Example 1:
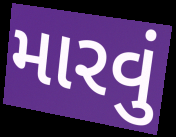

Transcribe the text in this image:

મારવું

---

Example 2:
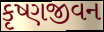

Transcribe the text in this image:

કૃષ્ણજીવન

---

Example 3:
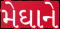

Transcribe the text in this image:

મેઘાને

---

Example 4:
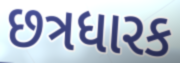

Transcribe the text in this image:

છત્રધારક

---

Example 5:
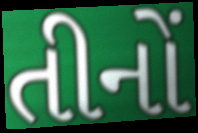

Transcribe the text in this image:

તીનોં